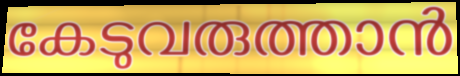
കേടുവരുത്താൻ